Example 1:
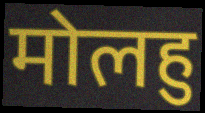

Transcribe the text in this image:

मोलहु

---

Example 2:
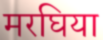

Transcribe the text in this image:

मरघिया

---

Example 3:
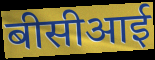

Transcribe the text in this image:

बीसीआई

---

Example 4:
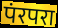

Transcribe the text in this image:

पंरपरा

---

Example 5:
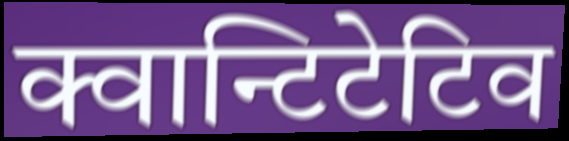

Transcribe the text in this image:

क्वान्टिटेटिव